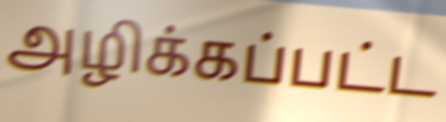
அழிக்கப்பட்ட